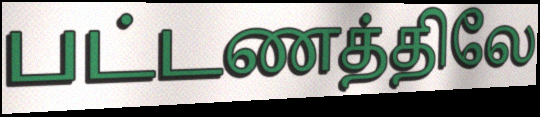
பட்டணத்திலே